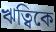
ঋত্বিকে